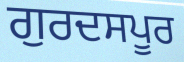
ਗੁਰਦਸਪੂਰ